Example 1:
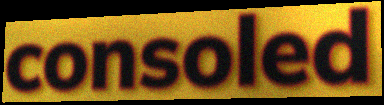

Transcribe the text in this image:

consoled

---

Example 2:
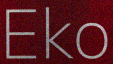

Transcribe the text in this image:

Eko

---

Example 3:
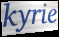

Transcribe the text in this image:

kyrie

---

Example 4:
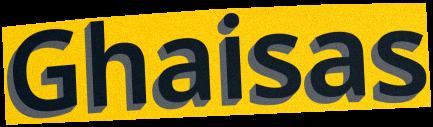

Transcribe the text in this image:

Ghaisas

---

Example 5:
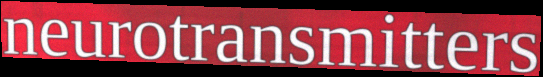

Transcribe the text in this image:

neurotransmitters